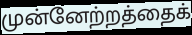
முன்னேற்றத்தைக்